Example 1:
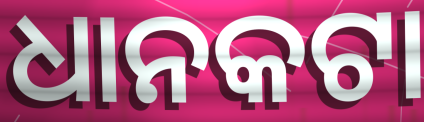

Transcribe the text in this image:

ଧାନକଟା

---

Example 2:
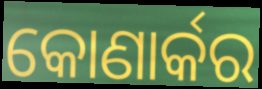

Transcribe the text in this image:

କୋଣାର୍କର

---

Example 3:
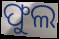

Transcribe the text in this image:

ଫୁଲ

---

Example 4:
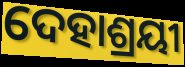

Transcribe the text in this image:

ଦେହାଶ୍ରୟୀ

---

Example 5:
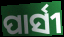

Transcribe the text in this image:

ପାର୍ସୀ